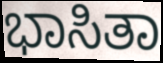
ಭಾಸಿತಾ